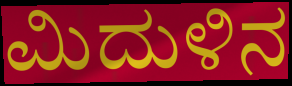
ಮಿದುಳಿನ